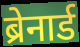
ब्रेनार्ड